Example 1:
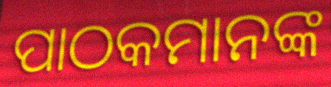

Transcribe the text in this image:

ପାଠକମାନଙ୍କ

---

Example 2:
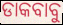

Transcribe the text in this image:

ଡାକବାବୁ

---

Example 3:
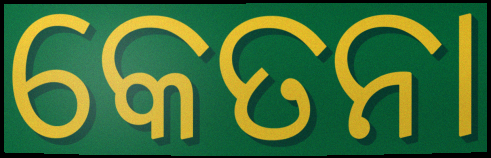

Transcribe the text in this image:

କେତନା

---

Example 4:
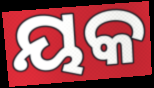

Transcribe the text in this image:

ୟକ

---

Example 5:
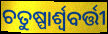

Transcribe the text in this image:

ଚତୁଷ୍ପାର୍ଶ୍ୱବର୍ତ୍ତୀ